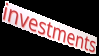
investments